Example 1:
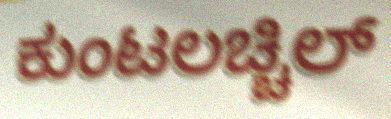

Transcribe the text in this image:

ಕುಂಟಲಚ್ಚಿಲ್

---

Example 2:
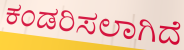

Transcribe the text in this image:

ಕಂಡರಿಸಲಾಗಿದೆ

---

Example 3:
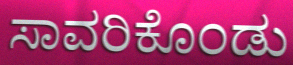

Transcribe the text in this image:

ಸಾವರಿಕೊಂಡು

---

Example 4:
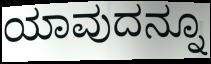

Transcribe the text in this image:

ಯಾವುದನ್ನೂ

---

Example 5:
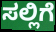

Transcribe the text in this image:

ಸಲ್ಲಿಗೆ